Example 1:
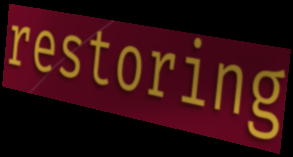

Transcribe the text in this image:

restoring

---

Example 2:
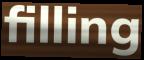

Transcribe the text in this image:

filling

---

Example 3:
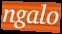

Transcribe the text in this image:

ngalo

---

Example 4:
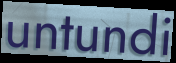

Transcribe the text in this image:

untundi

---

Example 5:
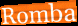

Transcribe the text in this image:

Romba